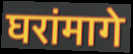
घरांमागे